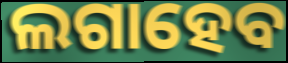
ଲଗାହେବ